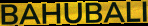
BAHUBALI